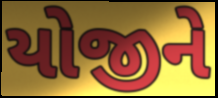
યોજીને